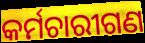
କର୍ମଚାରୀଗଣ